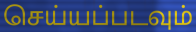
செய்யப்படவும்